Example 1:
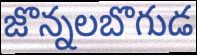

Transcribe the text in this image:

జొన్నలబొగుడ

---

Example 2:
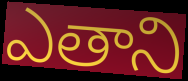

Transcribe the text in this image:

ఎతాని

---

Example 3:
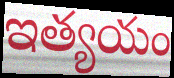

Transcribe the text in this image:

ఇత్యయం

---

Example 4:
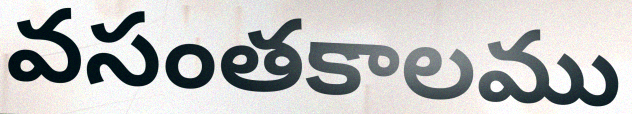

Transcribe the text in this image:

వసంతకాలము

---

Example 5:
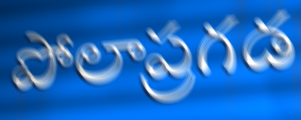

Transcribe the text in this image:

పోలాప్రగడ